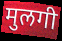
मुलगी